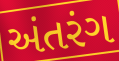
અંતરંગ